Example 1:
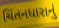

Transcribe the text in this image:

ચિંતનધારાનું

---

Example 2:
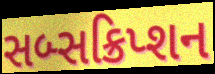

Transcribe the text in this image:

સબ્સક્રિપ્શન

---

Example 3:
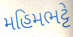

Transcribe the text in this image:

મહિમભટ્ટે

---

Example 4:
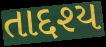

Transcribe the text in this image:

તાદ્દશ્ય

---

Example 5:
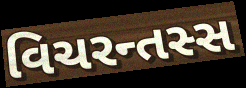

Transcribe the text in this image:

વિચરન્તસ્સ